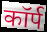
कॉर्प